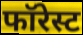
फॉरेस्ट